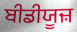
ਬੀਡੀਯੂਜ਼